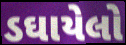
ડઘાયેલો